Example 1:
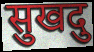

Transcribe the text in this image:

सुखदु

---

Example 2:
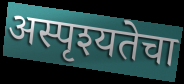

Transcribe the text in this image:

अस्पृश्यतेचा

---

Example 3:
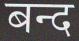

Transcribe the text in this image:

बन्द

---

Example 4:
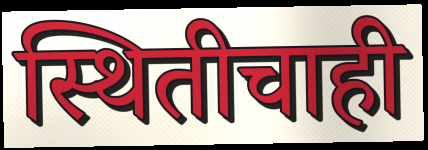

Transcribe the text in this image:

स्थितीचाही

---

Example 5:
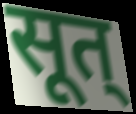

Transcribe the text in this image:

सूत्